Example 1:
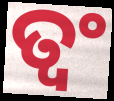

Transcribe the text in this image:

ତ୍ୱଂ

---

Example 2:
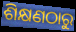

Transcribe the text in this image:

ଶିକ୍ଷଣଠାରୁ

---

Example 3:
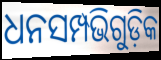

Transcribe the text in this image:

ଧନସମ୍ପଭିଗୁଡ଼ିକ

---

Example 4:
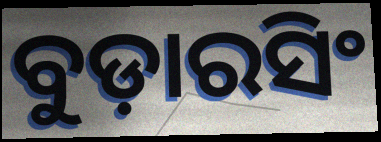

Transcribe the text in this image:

ବୁଡ଼ାରସିଂ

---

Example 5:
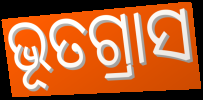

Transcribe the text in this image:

ଭୂତଗ୍ରାସ